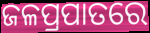
ଜଳପ୍ରପାତରେ